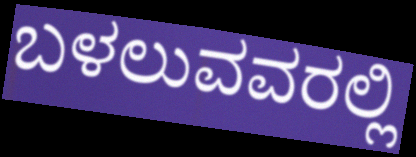
ಬಳಲುವವರಲ್ಲಿ